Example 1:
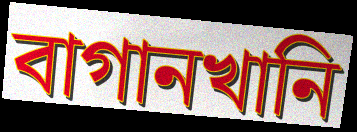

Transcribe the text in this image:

বাগানখানি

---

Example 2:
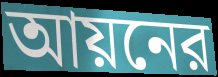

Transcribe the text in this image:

আয়নের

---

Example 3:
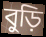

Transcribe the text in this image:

বুড়ি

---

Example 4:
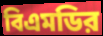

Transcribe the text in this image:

বিএমডির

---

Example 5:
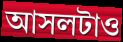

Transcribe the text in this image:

আসলটাও